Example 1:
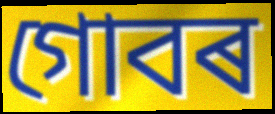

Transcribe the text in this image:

গোবৰ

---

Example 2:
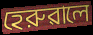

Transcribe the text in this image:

হেৰুৱালে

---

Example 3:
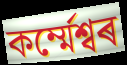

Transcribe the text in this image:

কৰ্ম্মেশ্বৰ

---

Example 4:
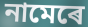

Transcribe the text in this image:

নামেৰে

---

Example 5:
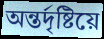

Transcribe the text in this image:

অন্তৰ্দৃষ্টিয়ে